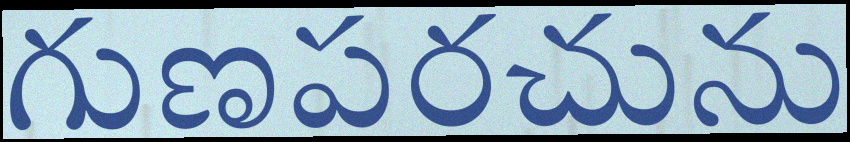
గుణపరచును